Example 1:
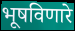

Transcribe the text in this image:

भूषविणारे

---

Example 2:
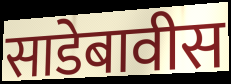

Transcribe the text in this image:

साडेबावीस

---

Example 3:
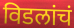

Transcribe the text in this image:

विडलांचं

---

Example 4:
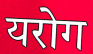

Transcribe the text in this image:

यरोग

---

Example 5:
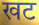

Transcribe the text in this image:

खट